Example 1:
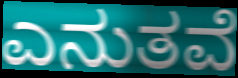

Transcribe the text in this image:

ಎನುತವೆ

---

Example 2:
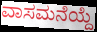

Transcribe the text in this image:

ವಾಸಮನೆಯ್ದೆ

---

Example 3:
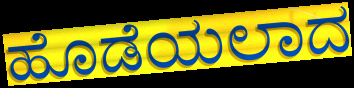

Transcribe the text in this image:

ಹೊಡೆಯಲಾದ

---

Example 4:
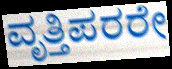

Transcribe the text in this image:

ವೃತ್ತಿಪರರೇ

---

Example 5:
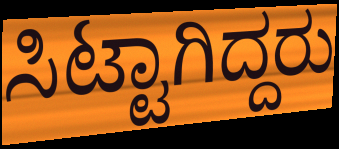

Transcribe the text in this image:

ಸಿಟ್ಟಾಗಿದ್ದರು